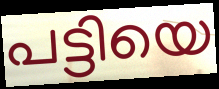
പട്ടിയെ